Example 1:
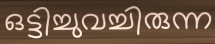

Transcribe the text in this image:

ഒട്ടിച്ചുവച്ചിരുന്ന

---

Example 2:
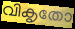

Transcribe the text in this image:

വികൃതോ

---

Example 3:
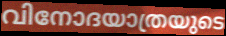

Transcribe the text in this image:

വിനോദയാത്രയുടെ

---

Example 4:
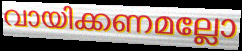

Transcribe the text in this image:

വായിക്കണമല്ലോ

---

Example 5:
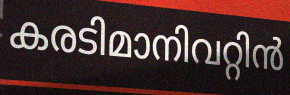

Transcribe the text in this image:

കരടിമാനിവറ്റിൻ